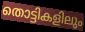
തൊട്ടികളിലും